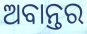
ଅବାନ୍ତର